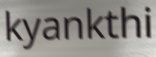
kyankthi